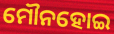
ମୌନହୋଇ